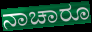
ನಾಚಾರೂ